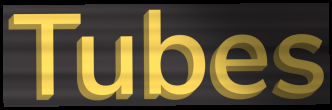
Tubes